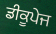
ਡੀਕੂਪੇਜ